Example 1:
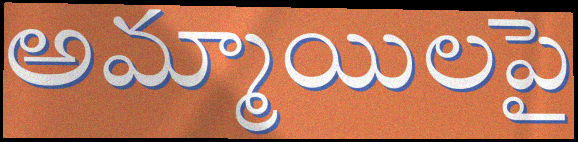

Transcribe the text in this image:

అమ్మాయిలపై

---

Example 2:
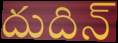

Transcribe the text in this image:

దుదిన్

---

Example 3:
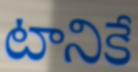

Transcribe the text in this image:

టానికే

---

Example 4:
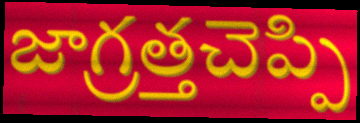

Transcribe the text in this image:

జాగ్రత్తచెప్పి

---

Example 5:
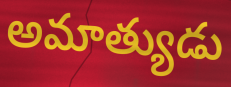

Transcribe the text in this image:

అమాత్యుడు